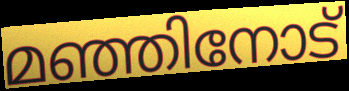
മഞ്ഞിനോട്